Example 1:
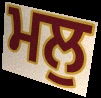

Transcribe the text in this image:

ਮਲੁ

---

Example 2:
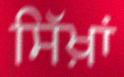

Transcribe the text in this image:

ਸਿੱਖ਼ਾਂ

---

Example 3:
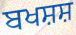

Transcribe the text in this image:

ਬਖਸ਼ਸ਼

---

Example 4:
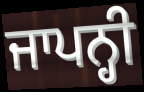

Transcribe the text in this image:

ਜਾਪਨ੍ਹੀ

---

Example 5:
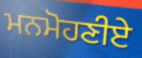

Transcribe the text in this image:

ਮਨਮੋਹਣੀਏ